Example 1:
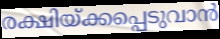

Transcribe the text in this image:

രക്ഷിയ്ക്കപ്പെടുവാൻ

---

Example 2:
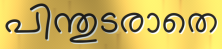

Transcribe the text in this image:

പിന്തുടരാതെ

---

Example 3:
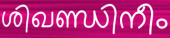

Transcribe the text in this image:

ശിഖണ്ഡിനീം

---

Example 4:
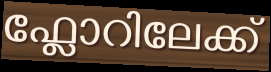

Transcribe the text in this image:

ഫ്ലോറിലേക്ക്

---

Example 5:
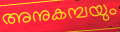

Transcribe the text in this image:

അനുകമ്പയും